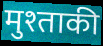
मुश्ताकी